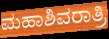
ಮಹಾಶಿವರಾತ್ರಿ